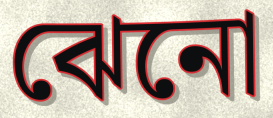
ঝেনো